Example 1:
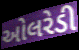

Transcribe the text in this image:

ઓલરેડી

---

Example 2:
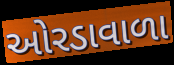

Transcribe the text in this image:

ઓરડાવાળા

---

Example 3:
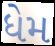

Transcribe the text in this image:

ધેમ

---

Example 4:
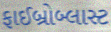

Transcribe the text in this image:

ફાઈબ્રોબ્લાસ્ટ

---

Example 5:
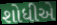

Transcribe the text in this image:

શોધીએ